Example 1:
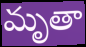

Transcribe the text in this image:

మృతా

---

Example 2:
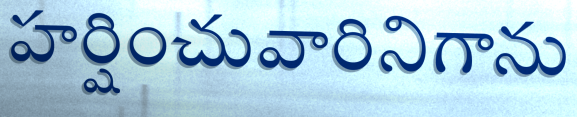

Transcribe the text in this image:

హర్షించువారినిగాను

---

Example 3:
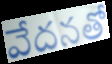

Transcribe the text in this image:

వేదనతో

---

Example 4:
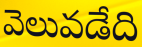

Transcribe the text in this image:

వెలువడేది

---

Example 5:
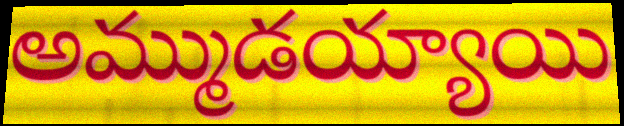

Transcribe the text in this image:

అమ్ముడయ్యాయి